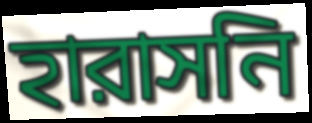
হারাসনি